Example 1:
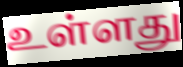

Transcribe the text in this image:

உள்ளது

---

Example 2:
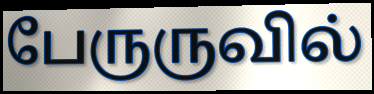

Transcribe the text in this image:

பேருருவில்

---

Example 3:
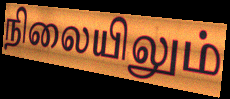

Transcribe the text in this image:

நிலையிலும்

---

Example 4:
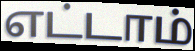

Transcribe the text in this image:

எட்டாம்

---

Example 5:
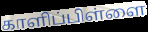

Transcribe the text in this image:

காளிப்பிள்ளை